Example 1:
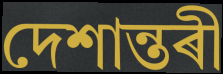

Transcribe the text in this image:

দেশান্তৰী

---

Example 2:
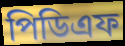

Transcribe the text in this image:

পিডিএফ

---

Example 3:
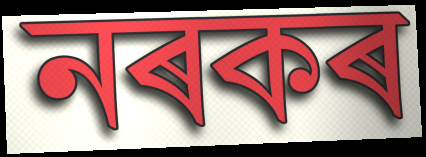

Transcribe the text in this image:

নৰকৰ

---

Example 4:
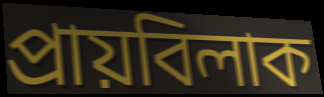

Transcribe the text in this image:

প্ৰায়বিলাক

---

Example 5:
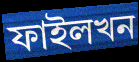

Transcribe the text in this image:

ফাইলখন